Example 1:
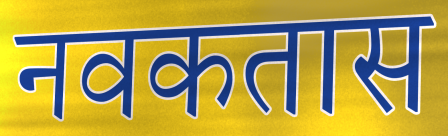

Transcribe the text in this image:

नवकतास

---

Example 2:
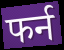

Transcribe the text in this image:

फर्न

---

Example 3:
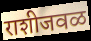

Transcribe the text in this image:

राशीजवळ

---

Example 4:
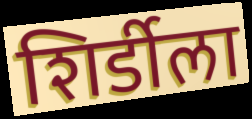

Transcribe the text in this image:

शिर्डीला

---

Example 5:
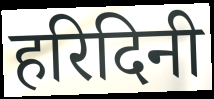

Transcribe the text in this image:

हरिदिनी